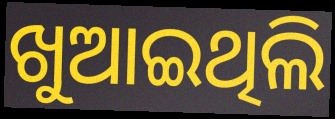
ଖୁଆଇଥିଲି